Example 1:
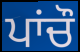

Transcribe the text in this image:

ਪਾਂਚੌ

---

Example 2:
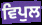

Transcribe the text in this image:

ਵਿਪੁਲ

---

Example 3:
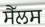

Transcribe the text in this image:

ਸੈੱਲਸ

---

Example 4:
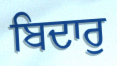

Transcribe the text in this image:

ਬਿਦਾਰੁ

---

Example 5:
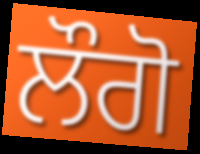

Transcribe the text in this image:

ਲੌਗੋ